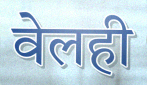
वेलही